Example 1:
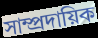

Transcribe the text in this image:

সাম্প্ৰদায়িক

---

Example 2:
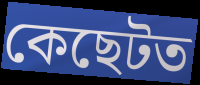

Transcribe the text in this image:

কেছেটত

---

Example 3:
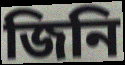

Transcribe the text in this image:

জিনি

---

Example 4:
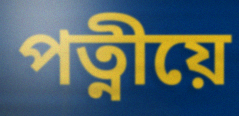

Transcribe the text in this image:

পত্নীয়ে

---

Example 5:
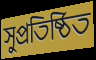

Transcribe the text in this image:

সুপ্ৰতিষ্ঠিত